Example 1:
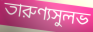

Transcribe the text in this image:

তারুণ্যসুলভ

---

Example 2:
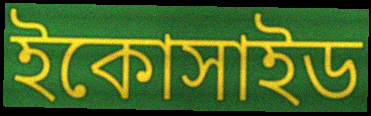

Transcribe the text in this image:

ইকোসাইড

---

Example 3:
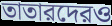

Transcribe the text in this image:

তাতারদেরও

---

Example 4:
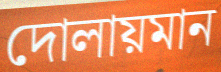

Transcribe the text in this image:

দোলায়মান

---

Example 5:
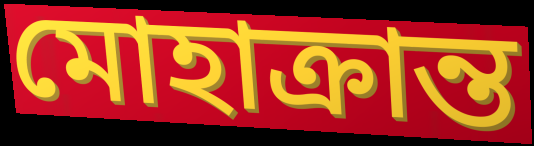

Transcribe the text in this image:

মোহাক্রান্ত